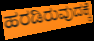
ಹರಡಿರುವುದಕ್ಕೆ